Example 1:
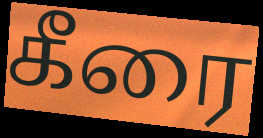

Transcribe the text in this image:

கீரை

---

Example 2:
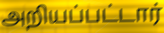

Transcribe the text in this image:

அறியப்பட்டார்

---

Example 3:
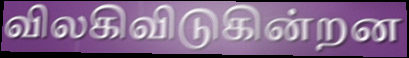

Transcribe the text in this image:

விலகிவிடுகின்றன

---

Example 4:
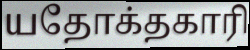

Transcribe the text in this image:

யதோக்தகாரி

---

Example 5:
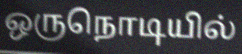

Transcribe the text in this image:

ஒருநொடியில்